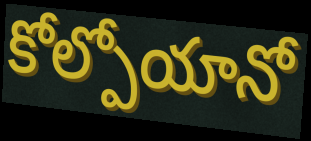
కోల్పోయానో